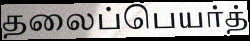
தலைப்பெயர்த்